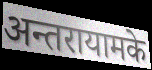
अन्तरायामके